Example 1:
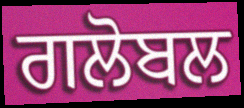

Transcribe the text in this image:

ਗਲੋਬਲ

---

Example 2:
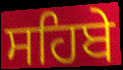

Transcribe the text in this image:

ਸਹਿਬੇ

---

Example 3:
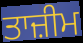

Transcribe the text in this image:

ਤਾਜ਼ੀਮ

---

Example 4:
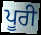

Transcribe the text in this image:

ਪੂਰੀ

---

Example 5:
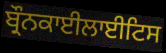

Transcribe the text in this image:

ਬ੍ਰੌਨਕਾਈਲਾਈਟਿਸ